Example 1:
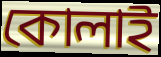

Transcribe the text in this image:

কোলাই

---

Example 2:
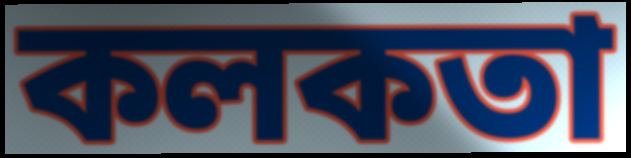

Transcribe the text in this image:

কলকতা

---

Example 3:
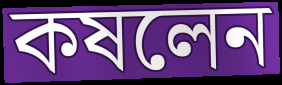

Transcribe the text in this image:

কষলেন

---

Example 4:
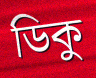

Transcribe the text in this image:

ডিকু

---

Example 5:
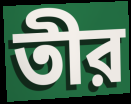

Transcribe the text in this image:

তীর